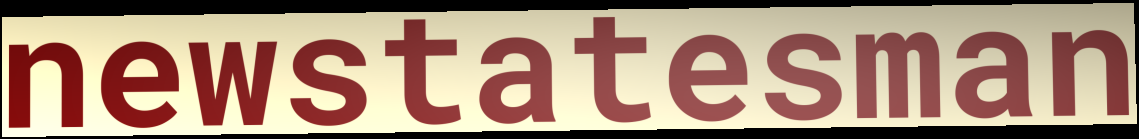
newstatesman